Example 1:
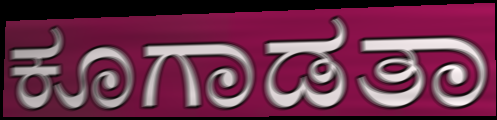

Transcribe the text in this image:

ಕೂಗಾಡತಾ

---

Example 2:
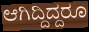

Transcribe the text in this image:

ಆಗಿದ್ದಿದ್ದರೂ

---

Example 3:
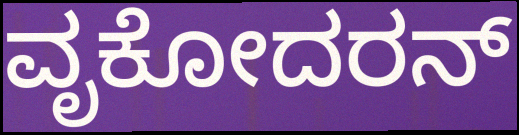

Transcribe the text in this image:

ವೃಕೋದರನ್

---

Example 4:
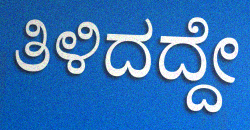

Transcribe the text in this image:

ತಿಳಿದದ್ದೇ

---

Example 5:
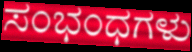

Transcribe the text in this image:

ಸಂಭಂಧಗಳು